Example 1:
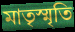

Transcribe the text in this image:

মাতৃস্মৃতি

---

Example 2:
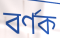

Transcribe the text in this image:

বর্ণক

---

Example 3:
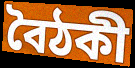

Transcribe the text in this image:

বৈঠকী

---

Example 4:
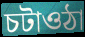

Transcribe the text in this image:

চটাওঠা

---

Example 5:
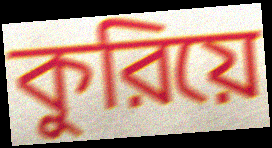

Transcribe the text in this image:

কুরিয়ে